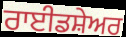
ਰਾਈਡਸ਼ੇਅਰ